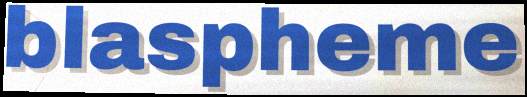
blaspheme